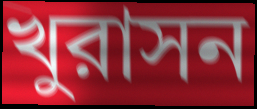
খুরাসন